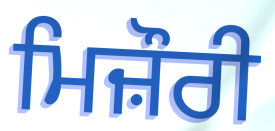
ਮਿਜ਼ੌਰੀ